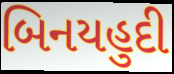
બિનયહુદી